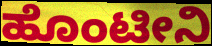
ಹೊಂಟೀನಿ